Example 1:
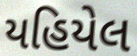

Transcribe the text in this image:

યહિયેલ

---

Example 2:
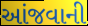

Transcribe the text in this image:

આંજવાની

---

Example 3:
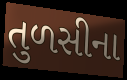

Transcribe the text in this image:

તુળસીના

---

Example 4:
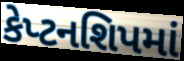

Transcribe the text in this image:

કેપ્ટનશિપમાં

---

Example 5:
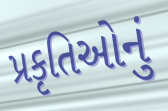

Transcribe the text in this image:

પ્રકૃતિઓનું